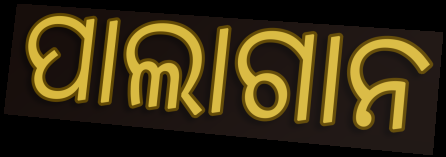
ପାଲାଗାନ